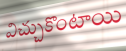
విచ్చుకొంటాయి